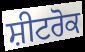
ਸ਼ੀਟਰੋਕ